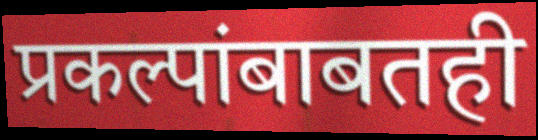
प्रकल्पांबाबतही